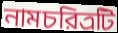
নামচরিত্রটি